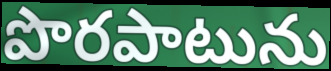
పొరపాటును